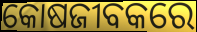
କୋଷଜୀବକରେ